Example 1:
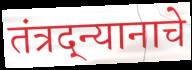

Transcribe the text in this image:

तंत्रद्न्यानाचे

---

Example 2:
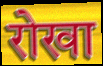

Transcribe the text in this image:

रोखा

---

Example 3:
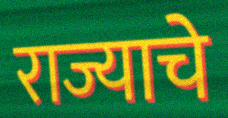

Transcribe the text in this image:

राज्याचे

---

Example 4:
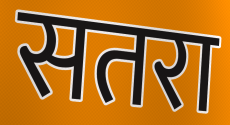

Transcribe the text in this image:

सतरा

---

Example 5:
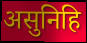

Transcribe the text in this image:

असुनिहि